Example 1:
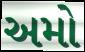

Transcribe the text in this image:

અમો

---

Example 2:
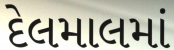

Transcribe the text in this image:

દેલમાલમાં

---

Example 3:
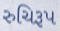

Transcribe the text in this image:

રુચિરૂપ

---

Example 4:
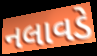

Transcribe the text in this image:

નલાવડે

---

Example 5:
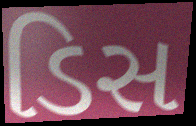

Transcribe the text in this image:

ડિસ